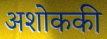
अशोककी